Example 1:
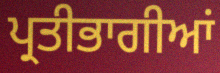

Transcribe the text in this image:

ਪ੍ਰਤੀਭਾਗੀਆਂ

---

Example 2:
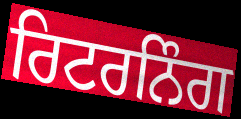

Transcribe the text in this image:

ਰਿਟਰਨਿੰਗ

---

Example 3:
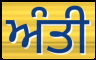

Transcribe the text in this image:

ਅੰਤੀ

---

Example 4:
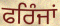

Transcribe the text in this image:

ਫਰਿੰਜਾਂ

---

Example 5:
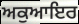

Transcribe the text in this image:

ਅਕੁਆਇਰ